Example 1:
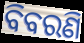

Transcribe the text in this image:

ବିବରଣି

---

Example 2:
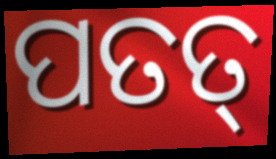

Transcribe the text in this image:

ପତତ୍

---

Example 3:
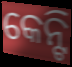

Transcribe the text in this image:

କେନ୍ଟି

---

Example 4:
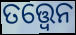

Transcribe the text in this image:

ତତ୍ତ୍ଵେନ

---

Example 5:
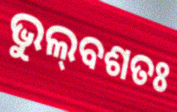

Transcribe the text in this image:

ଭୁଲ୍‌ବଶତଃ